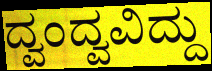
ದ್ವಂದ್ವವಿದ್ದು